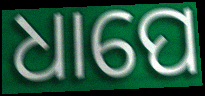
ଧାପେ